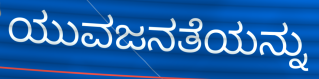
ಯುವಜನತೆಯನ್ನು